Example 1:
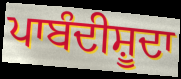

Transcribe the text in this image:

ਪਾਬੰਦੀਸ਼ੂਦਾ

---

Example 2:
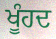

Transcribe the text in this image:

ਖੂੰਹਦ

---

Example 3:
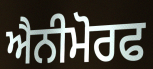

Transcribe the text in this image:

ਐਨੀਮੋਰਫ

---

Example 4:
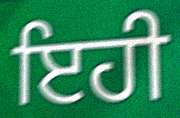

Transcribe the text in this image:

ਇਹੀ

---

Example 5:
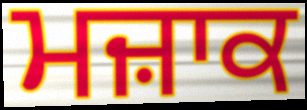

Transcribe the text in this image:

ਮਜ਼ਾਕ